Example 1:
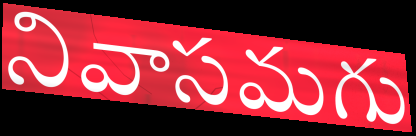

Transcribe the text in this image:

నివాసమగు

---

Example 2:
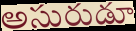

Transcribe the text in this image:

అసురుడూ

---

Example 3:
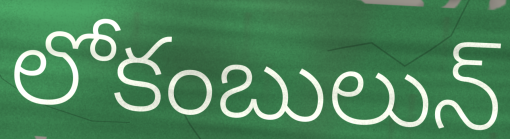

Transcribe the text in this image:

లోకంబులున్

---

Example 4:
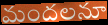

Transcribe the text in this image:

మందలనూ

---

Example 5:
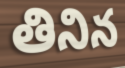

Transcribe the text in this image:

తినిన